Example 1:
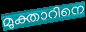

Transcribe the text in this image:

മുക്താറിനെ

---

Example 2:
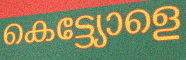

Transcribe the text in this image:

കെട്ട്യോളെ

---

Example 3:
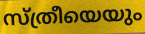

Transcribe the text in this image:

സ്ത്രീയെയും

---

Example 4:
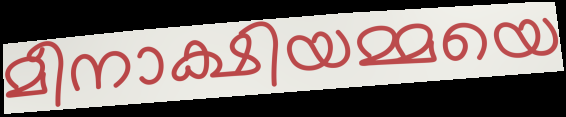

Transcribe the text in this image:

മീനാക്ഷിയമ്മയെ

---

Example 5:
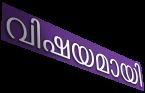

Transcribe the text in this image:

വിഷയമായി